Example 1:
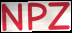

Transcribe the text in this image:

NPZ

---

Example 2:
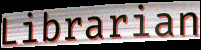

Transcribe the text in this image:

Librarian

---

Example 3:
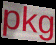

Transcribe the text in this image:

pkg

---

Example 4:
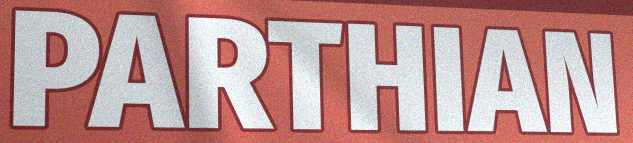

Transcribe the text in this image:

PARTHIAN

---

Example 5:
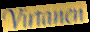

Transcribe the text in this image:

Virtanen